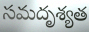
సమదృశ్యత